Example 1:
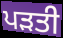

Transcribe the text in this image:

ਪੜਤੀ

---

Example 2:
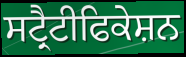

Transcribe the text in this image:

ਸਟ੍ਰੈਟੀਫਿਕੇਸ਼ਨ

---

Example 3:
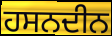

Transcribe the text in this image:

ਹਸਨਦੀਨ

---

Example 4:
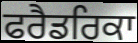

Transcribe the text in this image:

ਫਰੈਡਰਿਕਾ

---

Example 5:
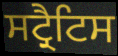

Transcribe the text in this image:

ਸਟ੍ਰੈਟਿਸ